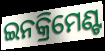
ଇନକ୍ରିମେଣ୍ଟ